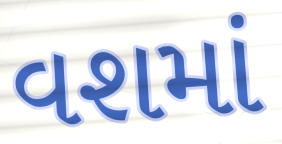
વશમાં